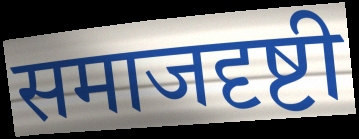
समाजदृष्टी